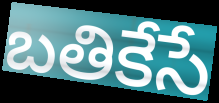
బతికేసే